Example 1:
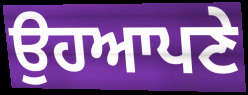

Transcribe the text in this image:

ਉਹਆਪਣੇ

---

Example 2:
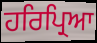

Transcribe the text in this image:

ਹਰਿਪ੍ਰਿਆ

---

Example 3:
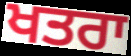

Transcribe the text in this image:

ਖਤਰਾ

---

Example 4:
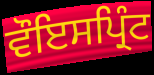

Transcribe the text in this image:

ਵੌਇਸਪ੍ਰਿੰਟ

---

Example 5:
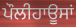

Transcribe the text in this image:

ਪੌਲੀਹਾਊਸਾਂ